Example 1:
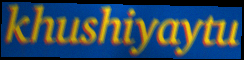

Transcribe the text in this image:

khushiyaytu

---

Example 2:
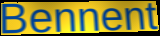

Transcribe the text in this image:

Bennent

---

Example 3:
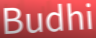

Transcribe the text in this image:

Budhi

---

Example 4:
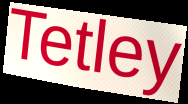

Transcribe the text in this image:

Tetley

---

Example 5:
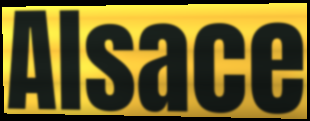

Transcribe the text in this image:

Alsace